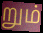
றும்